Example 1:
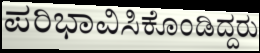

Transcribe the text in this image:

ಪರಿಭಾವಿಸಿಕೊಂಡಿದ್ದರು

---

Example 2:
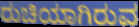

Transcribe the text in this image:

ರುಚಿಯಾಗಿರುವ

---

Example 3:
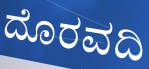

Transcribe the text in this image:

ದೊರವದಿ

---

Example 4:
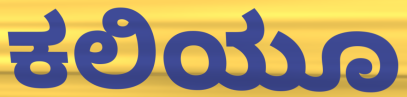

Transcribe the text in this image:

ಕಲಿಯೂ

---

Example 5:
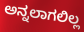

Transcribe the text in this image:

ಅನ್ನಲಾಗಲಿಲ್ಲ